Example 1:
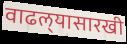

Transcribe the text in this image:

वाढल्यासारखी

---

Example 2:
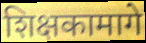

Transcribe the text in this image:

शिक्षकामागे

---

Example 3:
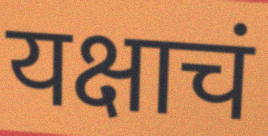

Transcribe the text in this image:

यक्षाचं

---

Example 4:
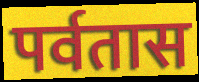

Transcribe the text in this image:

पर्वतास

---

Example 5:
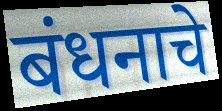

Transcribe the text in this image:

बंधनाचे